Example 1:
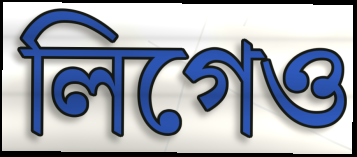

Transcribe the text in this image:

লিগেও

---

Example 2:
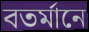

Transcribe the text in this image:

বতর্মানে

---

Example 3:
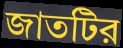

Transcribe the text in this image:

জাতটির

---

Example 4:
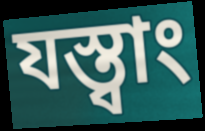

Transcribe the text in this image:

যস্ত্বাং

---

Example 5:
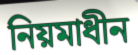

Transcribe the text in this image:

নিয়মাধীন